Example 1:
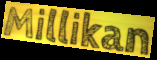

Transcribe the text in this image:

Millikan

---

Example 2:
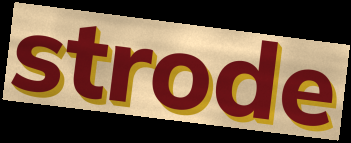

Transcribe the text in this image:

strode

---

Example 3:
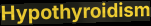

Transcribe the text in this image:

Hypothyroidism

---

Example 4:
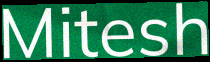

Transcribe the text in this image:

Mitesh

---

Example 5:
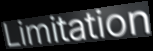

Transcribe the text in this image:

Limitation